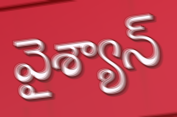
వైశ్యాన్